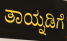
ತಾಯ್ನಡಿಗೆ